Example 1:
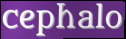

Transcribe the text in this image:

cephalo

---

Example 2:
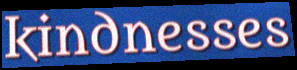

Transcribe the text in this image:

kindnesses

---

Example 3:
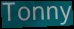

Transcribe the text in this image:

Tonny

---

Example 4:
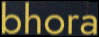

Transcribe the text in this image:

bhora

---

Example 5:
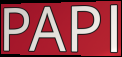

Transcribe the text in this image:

PAPI